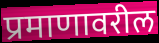
प्रमाणावरील